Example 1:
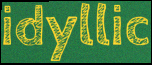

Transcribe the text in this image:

idyllic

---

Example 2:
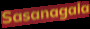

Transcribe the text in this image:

Sasanagala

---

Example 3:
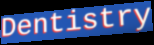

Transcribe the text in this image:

Dentistry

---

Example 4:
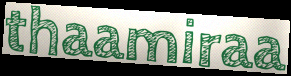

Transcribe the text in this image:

thaamiraa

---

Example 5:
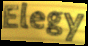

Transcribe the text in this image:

Elegy